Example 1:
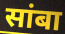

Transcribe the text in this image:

सांबा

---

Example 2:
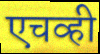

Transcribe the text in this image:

एचव्ही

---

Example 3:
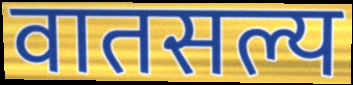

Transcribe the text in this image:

वातसल्य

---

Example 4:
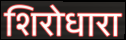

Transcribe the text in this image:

शिरोधारा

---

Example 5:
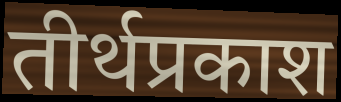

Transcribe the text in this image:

तीर्थप्रकाश